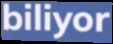
biliyor